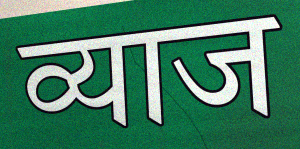
व्याज